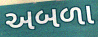
અબળા